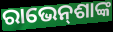
ରାଭେନ୍‌ଶାଙ୍କ